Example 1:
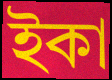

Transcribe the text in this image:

ইকা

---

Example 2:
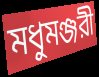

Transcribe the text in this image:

মধুমঞ্জরী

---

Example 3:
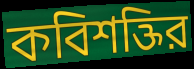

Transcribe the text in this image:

কবিশক্তির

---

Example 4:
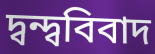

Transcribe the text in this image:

দ্বন্দ্ববিবাদ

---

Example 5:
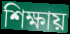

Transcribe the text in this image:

শিক্ষায়